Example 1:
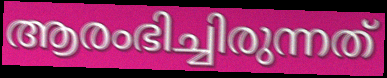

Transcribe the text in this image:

ആരംഭിച്ചിരുന്നത്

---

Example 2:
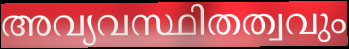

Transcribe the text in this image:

അവ്യവസ്ഥിതത്വവും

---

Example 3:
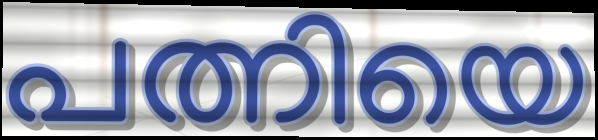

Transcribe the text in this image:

പത്നിയെ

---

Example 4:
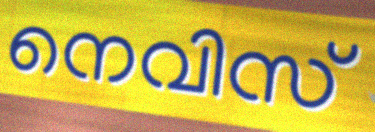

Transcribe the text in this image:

നെവിസ്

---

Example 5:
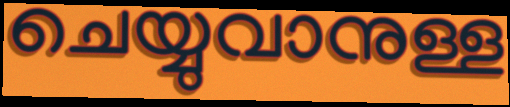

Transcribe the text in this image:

ചെയ്യുവാനുള്ള